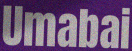
Umabai